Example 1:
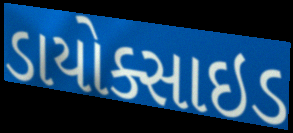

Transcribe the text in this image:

ડાયોક્સાઇડ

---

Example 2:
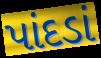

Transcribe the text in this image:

પાંદડાં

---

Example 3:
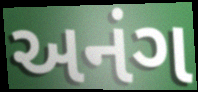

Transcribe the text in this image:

અનંગ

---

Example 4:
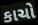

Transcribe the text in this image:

કાચો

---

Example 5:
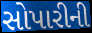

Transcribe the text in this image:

સોપારીની